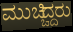
ಮುಚ್ಚಿದ್ದರು